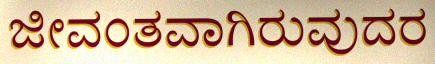
ಜೀವಂತವಾಗಿರುವುದರ